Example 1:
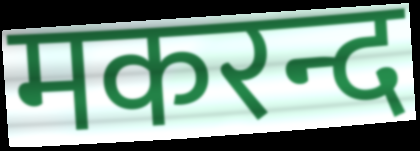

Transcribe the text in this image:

मकरन्द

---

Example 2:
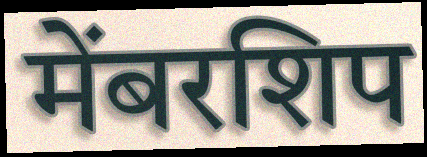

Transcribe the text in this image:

मेंबरशिप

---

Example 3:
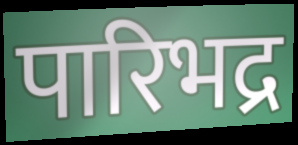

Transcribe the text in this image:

पारिभद्र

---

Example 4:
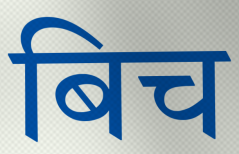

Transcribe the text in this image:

बिच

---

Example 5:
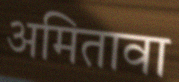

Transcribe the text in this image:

अमितावा